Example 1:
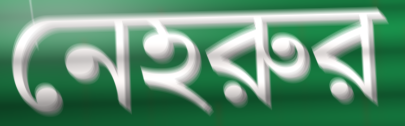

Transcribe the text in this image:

নেহরুর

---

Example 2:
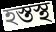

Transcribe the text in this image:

হস্তস্থ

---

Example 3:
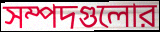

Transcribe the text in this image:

সম্পদগুলোর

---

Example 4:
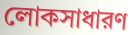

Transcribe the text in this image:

লোকসাধারণ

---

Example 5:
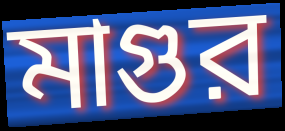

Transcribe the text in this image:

মাগুর